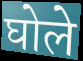
घोले